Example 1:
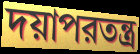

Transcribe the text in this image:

দয়াপরতন্ত্র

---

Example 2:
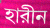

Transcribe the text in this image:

হারীন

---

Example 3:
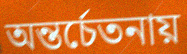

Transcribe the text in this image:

অন্তর্চেতনায়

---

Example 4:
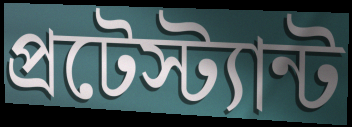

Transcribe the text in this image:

প্রটেস্ট্যান্ট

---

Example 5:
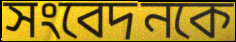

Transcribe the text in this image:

সংবেদনকে